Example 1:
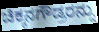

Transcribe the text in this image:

ಚಿಕ್ಕನಗೌಡ್ರರನ್ನು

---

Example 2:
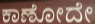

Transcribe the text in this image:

ಕಾಣೋದೇ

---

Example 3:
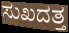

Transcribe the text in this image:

ಸುಖದತ್ತ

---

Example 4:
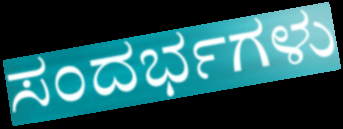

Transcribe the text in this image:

ಸಂದರ್ಭಗಳು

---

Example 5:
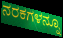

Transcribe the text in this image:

ನರಕಗಳನ್ನೂ